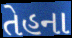
તેહના